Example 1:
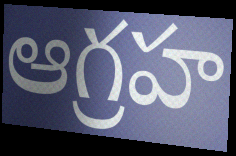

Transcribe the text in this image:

ఆగ్రహ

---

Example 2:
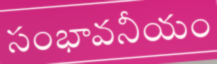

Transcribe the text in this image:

సంభావనీయం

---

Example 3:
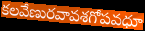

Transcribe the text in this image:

కలవేణురవావశగోపవధూ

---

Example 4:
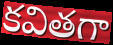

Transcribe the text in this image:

కవితగా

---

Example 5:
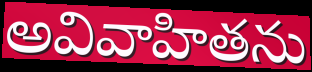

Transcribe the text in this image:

అవివాహితను